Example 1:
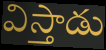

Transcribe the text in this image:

విస్తాడు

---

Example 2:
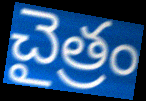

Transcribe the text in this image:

చైత్రం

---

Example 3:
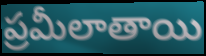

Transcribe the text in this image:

ప్రమీలాతాయి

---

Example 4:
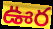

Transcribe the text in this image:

ఊర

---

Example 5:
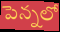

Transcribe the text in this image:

పెన్నలో